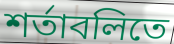
শর্তাবলিতে